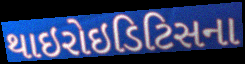
થાઇરોઇડિટિસના